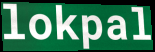
lokpal